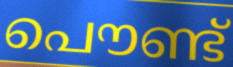
പൌണ്ട്